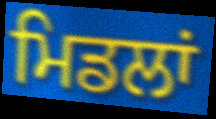
ਮਿਡਲਾਂ